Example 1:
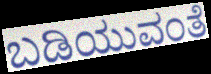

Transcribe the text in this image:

ಬಡಿಯುವಂತೆ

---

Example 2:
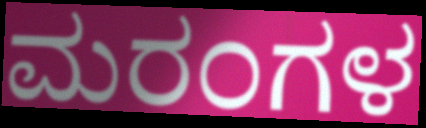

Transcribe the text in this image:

ಮರಂಗಳ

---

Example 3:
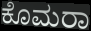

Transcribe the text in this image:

ಕೊಮರಾ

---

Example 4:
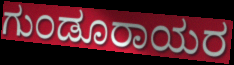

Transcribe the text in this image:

ಗುಂಡೂರಾಯರ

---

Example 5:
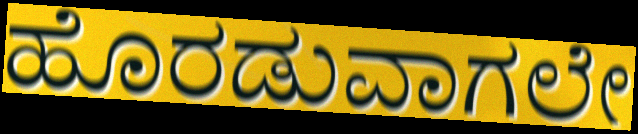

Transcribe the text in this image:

ಹೊರಡುವಾಗಲೇ